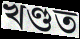
খণ্ডত